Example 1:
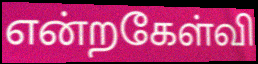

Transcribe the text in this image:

என்றகேள்வி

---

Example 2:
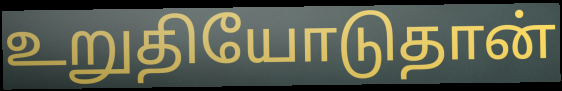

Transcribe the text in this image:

உறுதியோடுதான்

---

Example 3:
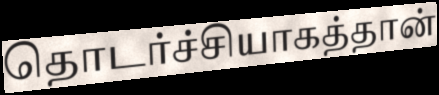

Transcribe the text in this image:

தொடர்ச்சியாகத்தான்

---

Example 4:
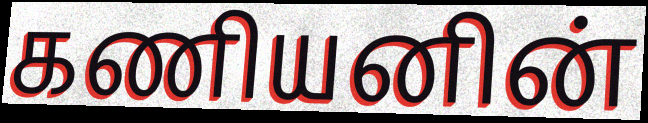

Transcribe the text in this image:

கணியனின்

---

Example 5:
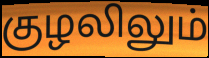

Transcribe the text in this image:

குழலிலும்